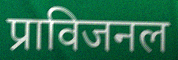
प्राविजनल